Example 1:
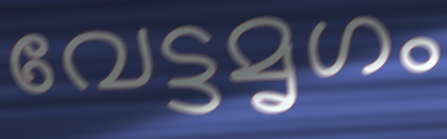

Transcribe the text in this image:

വേട്ടമൃഗം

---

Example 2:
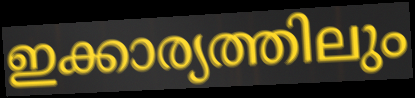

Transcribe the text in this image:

ഇക്കാര്യത്തിലും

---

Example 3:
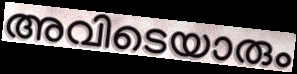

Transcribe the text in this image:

അവിടെയാരും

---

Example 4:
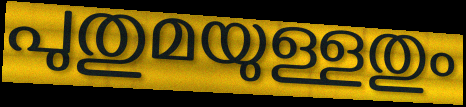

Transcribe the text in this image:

പുതുമയുള്ളതും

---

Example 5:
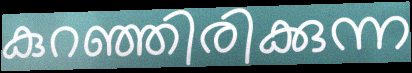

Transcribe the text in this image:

കുറഞ്ഞിരിക്കുന്ന